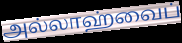
அல்லாஹ்வைப்